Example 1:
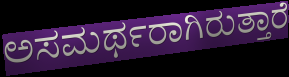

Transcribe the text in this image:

ಅಸಮರ್ಥರಾಗಿರುತ್ತಾರೆ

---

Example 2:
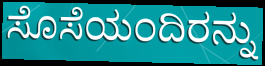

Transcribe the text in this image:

ಸೊಸೆಯಂದಿರನ್ನು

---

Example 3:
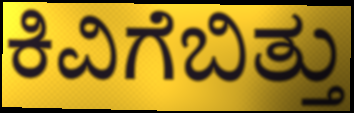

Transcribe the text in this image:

ಕಿವಿಗೆಬಿತ್ತು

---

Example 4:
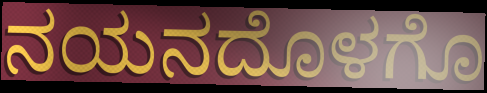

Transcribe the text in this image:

ನಯನದೊಳಗೊ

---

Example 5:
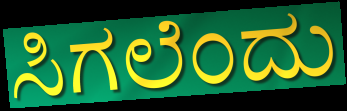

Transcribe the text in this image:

ಸಿಗಲೆಂದು